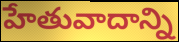
హేతువాదాన్ని